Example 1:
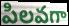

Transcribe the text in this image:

పిలవగా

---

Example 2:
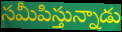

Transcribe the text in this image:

సమీపిస్తున్నాడు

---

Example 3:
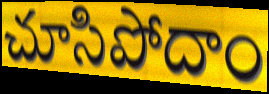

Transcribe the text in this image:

చూసిపోదాం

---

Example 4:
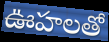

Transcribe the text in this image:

ఊహలతో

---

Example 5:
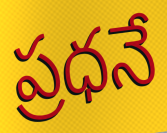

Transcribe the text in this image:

ప్రధనే